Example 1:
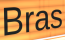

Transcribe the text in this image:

Bras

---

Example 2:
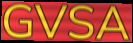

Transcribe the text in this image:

GVSA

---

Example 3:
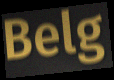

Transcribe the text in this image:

Belg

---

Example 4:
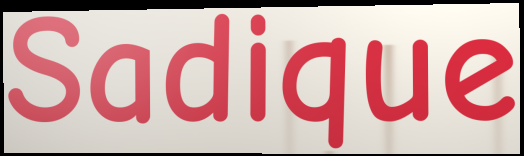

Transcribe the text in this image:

Sadique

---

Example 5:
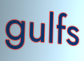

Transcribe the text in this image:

gulfs